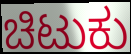
ಚಿಟುಕು